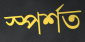
স্পৰ্শত